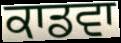
ਕਾਡਵਾ